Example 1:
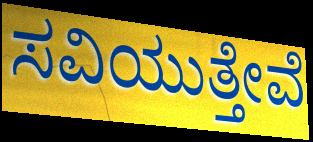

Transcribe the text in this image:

ಸವಿಯುತ್ತೇವೆ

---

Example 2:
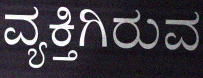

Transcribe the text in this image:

ವ್ಯಕ್ತಿಗಿರುವ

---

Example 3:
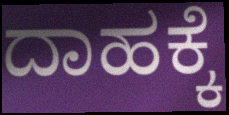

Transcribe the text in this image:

ದಾಹಕ್ಕೆ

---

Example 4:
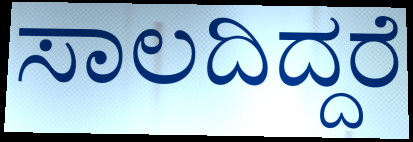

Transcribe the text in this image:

ಸಾಲದಿದ್ದರೆ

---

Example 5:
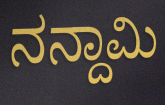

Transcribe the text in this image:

ನನ್ದಾಮಿ